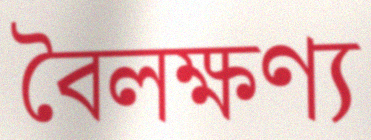
বৈলক্ষণ্য